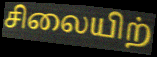
சிலையிற்